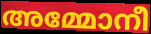
അമ്മോനീ